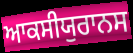
ਆਕਸੀਯੁਰਾਨਸ